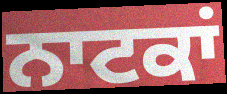
ਨਾਟਕਾਂ